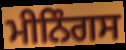
ਮੀਨਿੰਗਸ